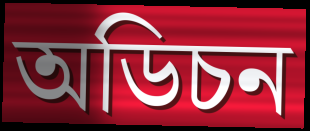
অডিচন